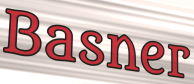
Basner